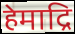
हेमाद्रि